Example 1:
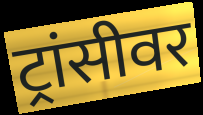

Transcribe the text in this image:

ट्रांसीवर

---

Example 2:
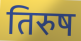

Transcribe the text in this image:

तिरुष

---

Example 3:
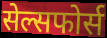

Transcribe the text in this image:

सेल्सफोर्स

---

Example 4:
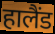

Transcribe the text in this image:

हालैंड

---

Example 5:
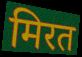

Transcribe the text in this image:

मिरत